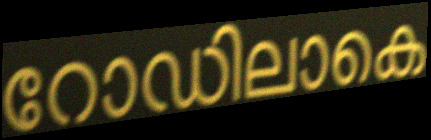
റോഡിലാകെ